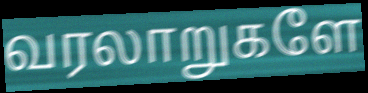
வரலாறுகளே